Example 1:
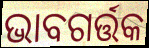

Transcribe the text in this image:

ଭାବଗର୍ତ୍ତକ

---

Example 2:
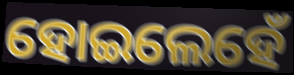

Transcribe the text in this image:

ହୋଇଲେହେଁ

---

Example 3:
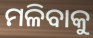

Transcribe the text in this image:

ମଳିବାକୁ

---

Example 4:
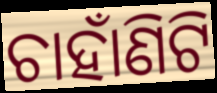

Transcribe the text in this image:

ଚାହାଁଣିଟି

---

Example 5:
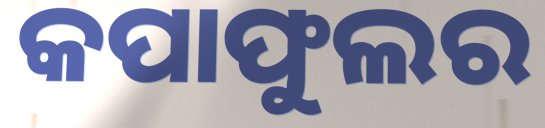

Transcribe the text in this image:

କପାଫୁଲର